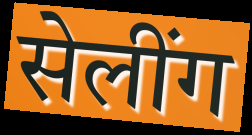
सेलींग